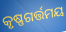
କୃଷ୍ଣଗର୍ତ୍ତମୟ